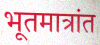
भूतमात्रांत